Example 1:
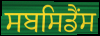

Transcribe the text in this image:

ਸਬਸਿਡੈਂਸ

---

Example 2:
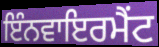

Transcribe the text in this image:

ਇੰਨਵਾਇਰਮੈਂਟ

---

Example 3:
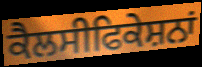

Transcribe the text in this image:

ਕੈਲਸੀਫਿਕੇਸ਼ਨਾਂ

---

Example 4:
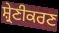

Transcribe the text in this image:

ਸ਼੍ਰੇਣੀਕਰਣ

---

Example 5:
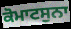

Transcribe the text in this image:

ਕੋਮਾਟਸੁਨਾ